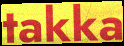
takka